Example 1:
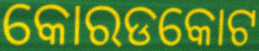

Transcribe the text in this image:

କୋରଡକୋଟ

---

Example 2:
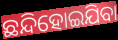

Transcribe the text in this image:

ଛନ୍ଦିହୋଇଯିବା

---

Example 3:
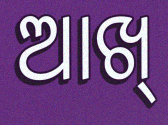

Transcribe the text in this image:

ଆଖ୍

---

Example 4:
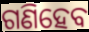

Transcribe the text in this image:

ଗଣିହେବ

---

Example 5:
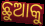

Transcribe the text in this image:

ଛୁଆକୁ